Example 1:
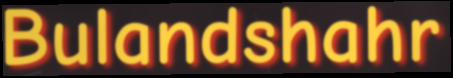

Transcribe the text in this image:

Bulandshahr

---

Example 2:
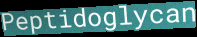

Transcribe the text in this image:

Peptidoglycan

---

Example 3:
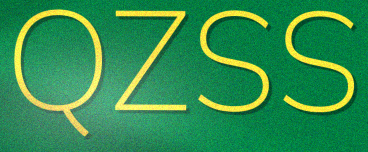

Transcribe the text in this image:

QZSS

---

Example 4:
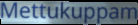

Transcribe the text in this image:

Mettukuppam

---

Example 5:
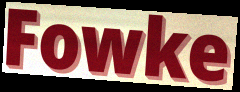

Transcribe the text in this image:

Fowke